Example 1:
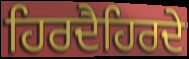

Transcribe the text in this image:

ਹਿਰਦੈਹਿਰਦੇ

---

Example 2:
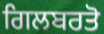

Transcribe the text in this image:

ਗਿਲਬਰਤੋ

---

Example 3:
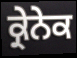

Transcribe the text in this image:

ਕ੍ਰੇਨੇਕ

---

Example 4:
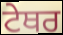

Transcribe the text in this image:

ਟੇਥਰ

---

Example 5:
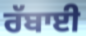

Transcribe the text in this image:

ਰੱਬਾਈ